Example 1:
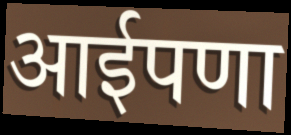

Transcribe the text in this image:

आईपणा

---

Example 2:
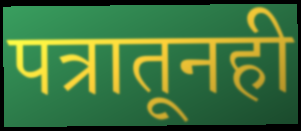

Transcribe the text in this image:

पत्रातूनही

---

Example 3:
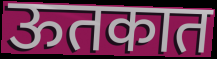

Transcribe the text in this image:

ऊतकात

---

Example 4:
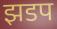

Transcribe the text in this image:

झडप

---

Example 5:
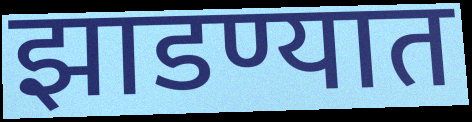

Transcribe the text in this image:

झाडण्यात